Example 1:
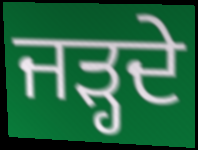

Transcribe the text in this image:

ਜੜ੍ਹਦੇ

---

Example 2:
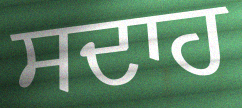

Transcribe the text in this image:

ਸਦਾਹ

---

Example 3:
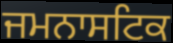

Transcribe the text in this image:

ਜਮਨਾਸਟਿਕ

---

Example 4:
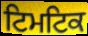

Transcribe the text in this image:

ਟਿਮਟਿਕ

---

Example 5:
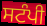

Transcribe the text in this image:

ਸਟੰਪੀ